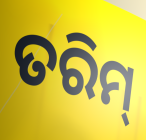
ତରିମ୍